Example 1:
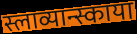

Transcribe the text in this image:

स्लाव्यान्स्काया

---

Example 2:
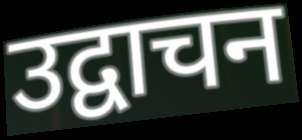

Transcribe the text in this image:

उद्वाचन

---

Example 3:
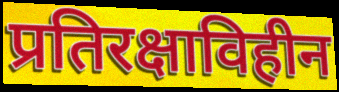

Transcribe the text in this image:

प्रतिरक्षाविहीन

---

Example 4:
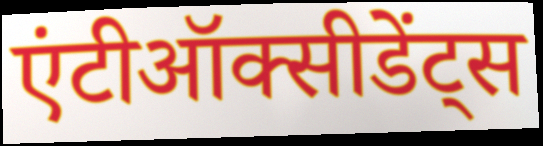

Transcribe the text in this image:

एंटीऑक्सीडेंट्स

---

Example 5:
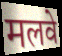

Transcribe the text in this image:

मलवे